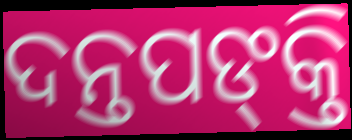
ଦନ୍ତପଙ୍‍କ୍ତି